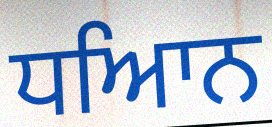
ਧਆਿਨ